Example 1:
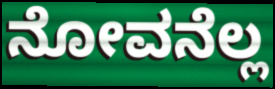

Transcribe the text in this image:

ನೋವನೆಲ್ಲ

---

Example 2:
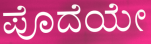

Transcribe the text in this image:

ಪೊದೆಯೇ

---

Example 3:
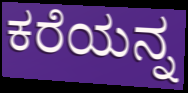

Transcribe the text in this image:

ಕರೆಯನ್ನ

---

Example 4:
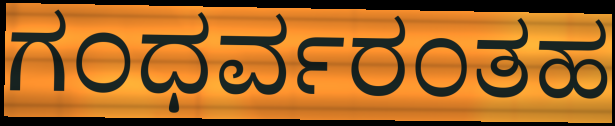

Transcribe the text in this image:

ಗಂಧರ್ವರಂತಹ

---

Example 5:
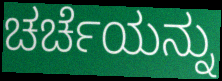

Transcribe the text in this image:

ಚರ್ಚೆಯನ್ನು